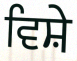
ਵਿਸ਼ੇ